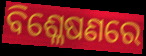
ବିଶ୍ଳେଷଣରେ